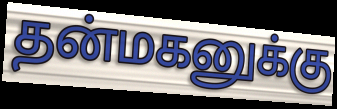
தன்மகனுக்கு